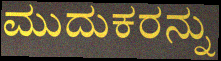
ಮುದುಕರನ್ನು